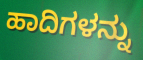
ಹಾದಿಗಳನ್ನು